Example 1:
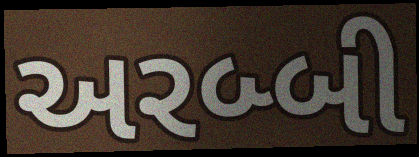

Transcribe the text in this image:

અરબ્બી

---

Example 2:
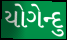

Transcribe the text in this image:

યોગેન્દુ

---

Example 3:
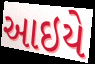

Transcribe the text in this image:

આઇયે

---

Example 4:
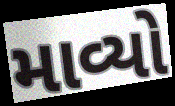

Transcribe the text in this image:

માવ્યો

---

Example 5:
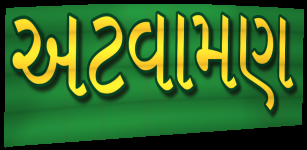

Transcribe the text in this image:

અટવામણ